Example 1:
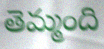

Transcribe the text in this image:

తెమ్మంది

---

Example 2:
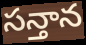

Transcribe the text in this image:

సన్తాన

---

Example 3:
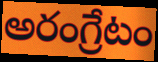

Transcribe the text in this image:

అరంగ్రేటం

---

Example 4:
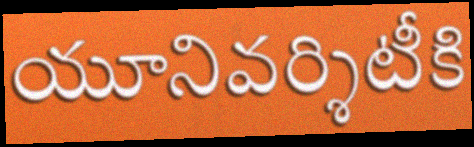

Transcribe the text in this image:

యూనివర్శిటీకి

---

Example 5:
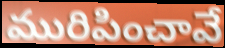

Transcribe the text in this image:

మురిపించావే